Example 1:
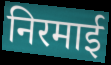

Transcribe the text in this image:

निरमाई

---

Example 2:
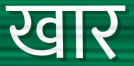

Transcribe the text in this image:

खार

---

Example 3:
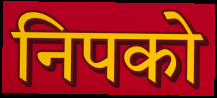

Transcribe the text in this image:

निपको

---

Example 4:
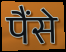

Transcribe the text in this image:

पैंसे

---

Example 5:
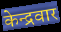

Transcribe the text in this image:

केन्द्रवार